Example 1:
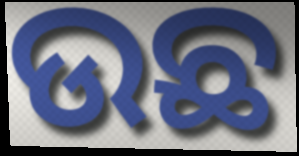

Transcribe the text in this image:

ଉଛ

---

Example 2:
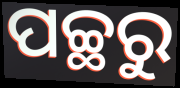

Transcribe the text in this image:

ପଚ୍ଛରୁ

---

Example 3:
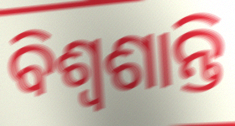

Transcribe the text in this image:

ବିଶ୍ୱଶାନ୍ତି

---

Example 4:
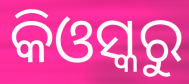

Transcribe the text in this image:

କିଓସ୍କରୁ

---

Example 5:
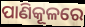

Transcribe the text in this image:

ପାଣିକୂଳରେ